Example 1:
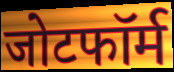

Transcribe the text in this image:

जोटफॉर्म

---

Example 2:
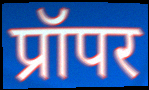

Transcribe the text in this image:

प्रॉपर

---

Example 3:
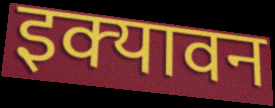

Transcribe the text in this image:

इक्‍यावन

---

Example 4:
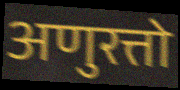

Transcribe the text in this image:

अणुरत्तो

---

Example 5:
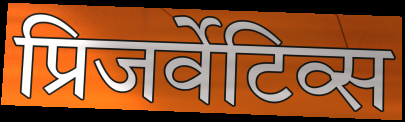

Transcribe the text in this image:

प्रिजर्वेटिव्स